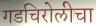
गडचिरोलीचा